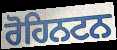
ਰੋਹਿਨਟਨ